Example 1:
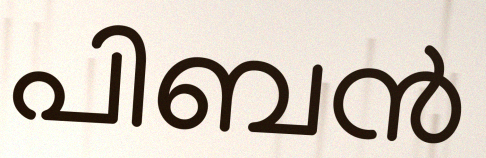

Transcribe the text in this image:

പിബൻ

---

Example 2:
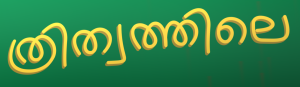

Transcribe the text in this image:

ത്രിത്വത്തിലെ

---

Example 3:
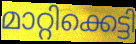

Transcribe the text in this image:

മാറ്റിക്കെട്ടി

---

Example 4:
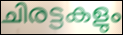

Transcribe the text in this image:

ചിരട്ടകളും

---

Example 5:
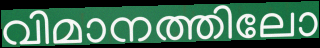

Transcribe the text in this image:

വിമാനത്തിലോ